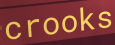
crooks